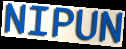
NIPUN